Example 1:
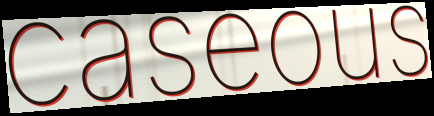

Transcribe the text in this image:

caseous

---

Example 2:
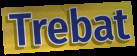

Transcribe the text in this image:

Trebat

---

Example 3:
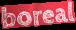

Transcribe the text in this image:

boreal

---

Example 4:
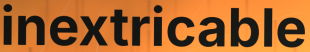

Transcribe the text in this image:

inextricable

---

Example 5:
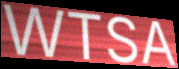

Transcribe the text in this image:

WTSA